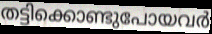
തട്ടിക്കൊണ്ടുപോയവർ